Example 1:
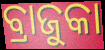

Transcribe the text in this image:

ବ୍ରାଜୁକା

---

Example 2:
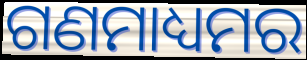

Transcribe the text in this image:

ଗଣମାଧ୍ୟମର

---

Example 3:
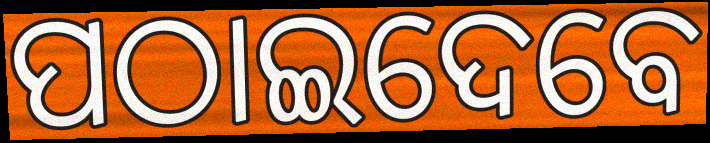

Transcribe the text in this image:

ପଠାଇଦେବେ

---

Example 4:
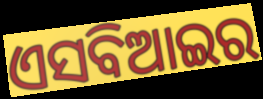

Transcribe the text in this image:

ଏସବିଆଇର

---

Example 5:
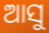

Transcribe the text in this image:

ଆସୁ